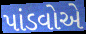
પાંડવોએ